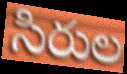
సిరుల